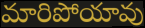
మారిపోయావు